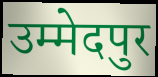
उम्मेदपुर